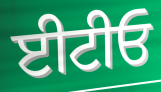
ਈਟੀਓ